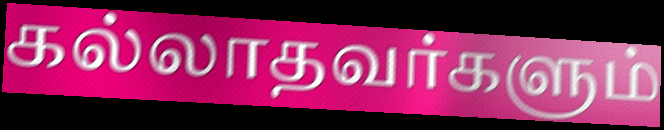
கல்லாதவர்களும்